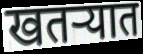
खतऱ्यात